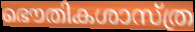
ഭൌതികശാസ്ത്ര